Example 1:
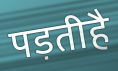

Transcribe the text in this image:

पड़तीहै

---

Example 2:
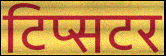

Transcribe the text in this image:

टिप्सटर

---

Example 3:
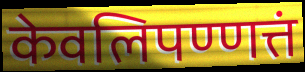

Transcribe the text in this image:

केवलिपण्णत्तं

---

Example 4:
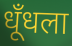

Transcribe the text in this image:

धूँधला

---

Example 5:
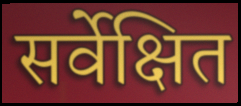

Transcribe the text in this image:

सर्वेक्षित